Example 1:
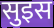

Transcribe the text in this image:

सुइस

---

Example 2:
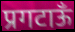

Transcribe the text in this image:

प्रगटाऊँ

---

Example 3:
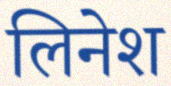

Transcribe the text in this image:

लिनेश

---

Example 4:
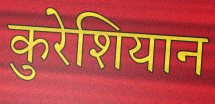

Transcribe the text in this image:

कुरेशियान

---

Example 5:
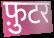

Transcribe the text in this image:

फ़ुटर